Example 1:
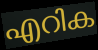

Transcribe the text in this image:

എറിക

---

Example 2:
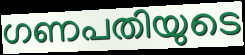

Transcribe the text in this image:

ഗണപതിയുടെ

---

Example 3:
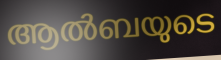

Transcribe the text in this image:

ആൽബയുടെ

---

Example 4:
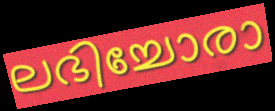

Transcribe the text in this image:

ലഭിച്ചോരാ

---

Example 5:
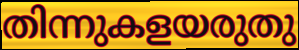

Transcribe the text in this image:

തിന്നുകളയരുതു